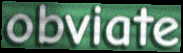
obviate